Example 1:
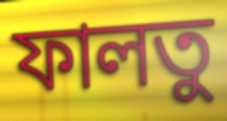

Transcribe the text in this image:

ফালতু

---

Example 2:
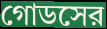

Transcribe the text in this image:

গোডসের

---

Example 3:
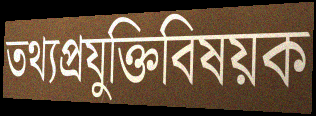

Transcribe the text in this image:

তথ্যপ্রযুক্তিবিষয়ক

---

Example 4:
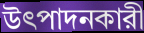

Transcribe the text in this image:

উৎপাদনকারী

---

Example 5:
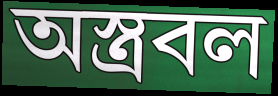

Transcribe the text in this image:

অস্ত্রবল